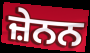
ਜ਼ੇਨਨ